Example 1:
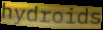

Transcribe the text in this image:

hydroids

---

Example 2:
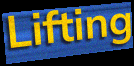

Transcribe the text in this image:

Lifting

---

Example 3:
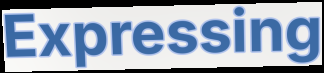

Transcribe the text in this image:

Expressing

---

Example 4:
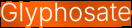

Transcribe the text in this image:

Glyphosate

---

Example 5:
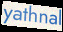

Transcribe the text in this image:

yathnal